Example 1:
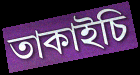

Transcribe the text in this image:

তাকাইচি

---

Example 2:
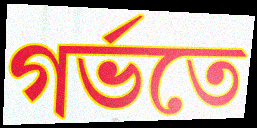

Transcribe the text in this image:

গৰ্ভতে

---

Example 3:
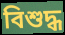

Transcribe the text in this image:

বিশুদ্ধ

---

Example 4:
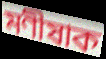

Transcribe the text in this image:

মণীষাক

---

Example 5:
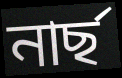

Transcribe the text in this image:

নাৰ্ছ